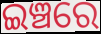
ଇଞ୍ଚରେ